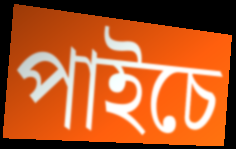
পাইচে